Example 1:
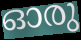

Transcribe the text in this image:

ഓരു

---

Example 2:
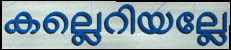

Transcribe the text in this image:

കല്ലെറിയല്ലേ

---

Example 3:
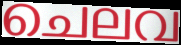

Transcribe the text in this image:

ചെലവ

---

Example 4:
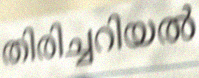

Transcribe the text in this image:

തിരിച്ചറിയൽ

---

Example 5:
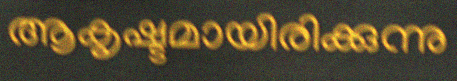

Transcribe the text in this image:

ആകൃഷ്ടമായിരിക്കുന്നു